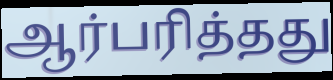
ஆர்பரித்தது